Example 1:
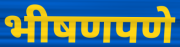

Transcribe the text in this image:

भीषणपणे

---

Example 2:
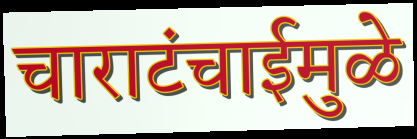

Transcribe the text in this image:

चाराटंचाईमुळे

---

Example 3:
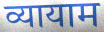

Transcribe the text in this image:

व्यायाम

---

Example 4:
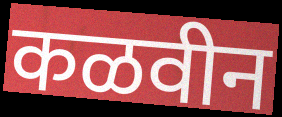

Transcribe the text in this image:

कळवीन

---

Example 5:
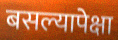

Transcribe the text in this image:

बसल्यापेक्षा